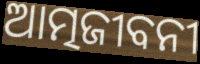
ଆତ୍ମଜୀବନୀ